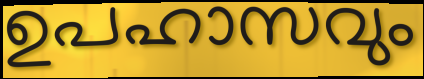
ഉപഹാസവും